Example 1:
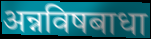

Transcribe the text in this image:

अन्नविषबाधा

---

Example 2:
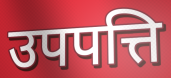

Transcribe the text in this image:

उपपत्ति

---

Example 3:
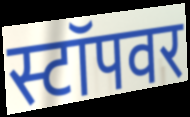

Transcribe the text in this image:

स्टॉपवर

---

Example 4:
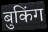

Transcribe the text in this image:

बुकिंग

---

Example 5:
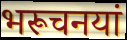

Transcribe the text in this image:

भरूचनयां